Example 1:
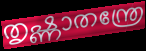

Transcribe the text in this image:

തൃഷ്ണാതന്ത്രേ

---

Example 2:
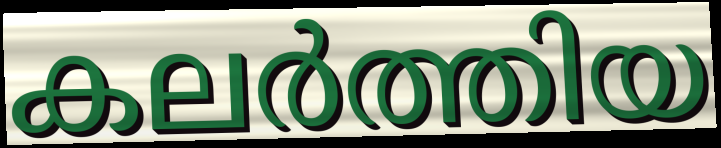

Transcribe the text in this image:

കലർത്തിയ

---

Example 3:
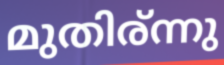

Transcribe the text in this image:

മുതിര്ന്നു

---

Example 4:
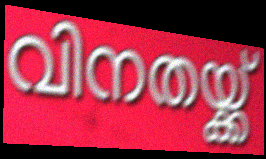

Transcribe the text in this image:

വിനതയ്ക്ക്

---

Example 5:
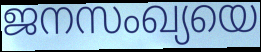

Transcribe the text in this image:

ജനസംഖ്യയെ